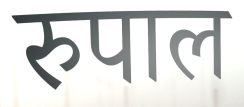
रुपाल